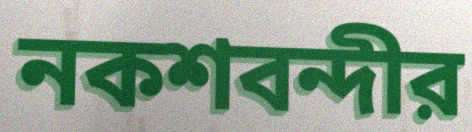
নকশবন্দীর